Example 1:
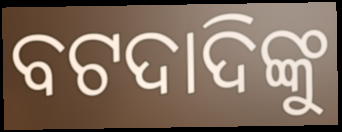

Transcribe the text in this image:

ବଟଦାଦିଙ୍କୁ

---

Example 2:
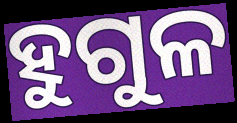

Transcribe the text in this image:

ହୁଗୁଳ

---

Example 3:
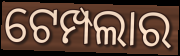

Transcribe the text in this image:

ଟେମ୍ପଲାର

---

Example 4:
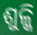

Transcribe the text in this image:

ଶୁଳ୍କି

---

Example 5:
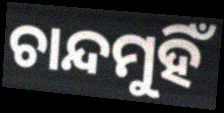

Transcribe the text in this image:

ଚାନ୍ଦମୁହିଁ